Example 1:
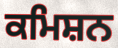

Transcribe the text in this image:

ਕਮਿਸ਼ਨ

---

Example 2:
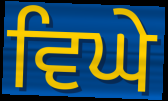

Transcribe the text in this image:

ਵਿਘੇ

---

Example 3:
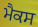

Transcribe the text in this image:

ਮੈਕਸ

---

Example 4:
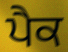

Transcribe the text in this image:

ਪੈਕ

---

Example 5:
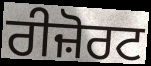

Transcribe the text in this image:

ਰੀਜ਼ੋਰਟ